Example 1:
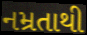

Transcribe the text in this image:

નમ્રતાથી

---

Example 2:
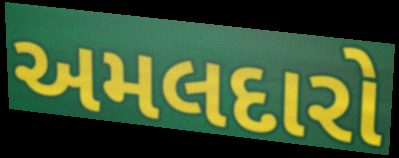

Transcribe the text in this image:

અમલદારો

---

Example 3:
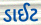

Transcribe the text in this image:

ડાઈટ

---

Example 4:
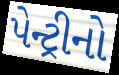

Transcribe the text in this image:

પેન્ટ્રીનો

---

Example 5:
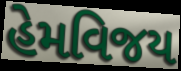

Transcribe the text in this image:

હેમવિજય